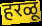
हरळू